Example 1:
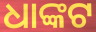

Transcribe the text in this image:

ଧାଙ୍କଟ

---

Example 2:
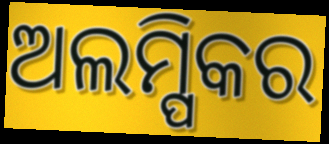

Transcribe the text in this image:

ଅଲମ୍ପିକର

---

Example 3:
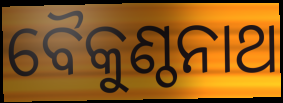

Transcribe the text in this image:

ବୈକୁଣ୍ଠନାଥ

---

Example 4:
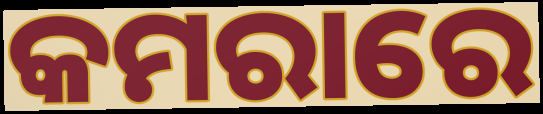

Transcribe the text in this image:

କମରାରେ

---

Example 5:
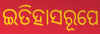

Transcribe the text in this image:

ଇତିହାସରୂପେ